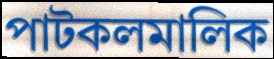
পাটকলমালিক